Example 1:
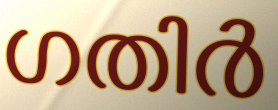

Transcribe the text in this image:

ഗതിർ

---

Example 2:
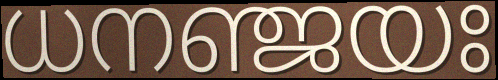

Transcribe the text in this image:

ധനഞ്ജയഃ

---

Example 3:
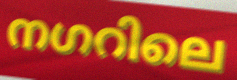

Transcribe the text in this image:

നഗറിലെ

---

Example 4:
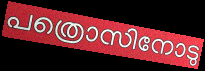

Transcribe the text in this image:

പത്രൊസിനോടു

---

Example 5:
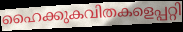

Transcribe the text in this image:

ഹൈക്കുകവിതകളെപ്പറ്റി